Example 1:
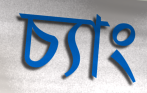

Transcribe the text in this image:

চ্যাং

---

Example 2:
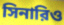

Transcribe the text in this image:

সিনারিও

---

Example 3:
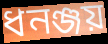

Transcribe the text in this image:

ধনঞ্জয়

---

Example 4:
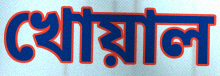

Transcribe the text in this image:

খোয়াল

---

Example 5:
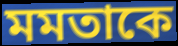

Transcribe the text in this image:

মমতাকে